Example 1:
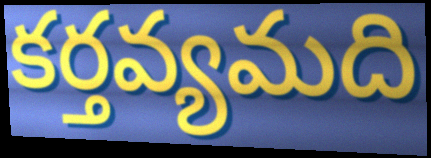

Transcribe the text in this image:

కర్తవ్యమది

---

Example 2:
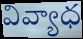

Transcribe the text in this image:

వివ్యాధ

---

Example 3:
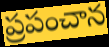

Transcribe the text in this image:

ప్రపంచాన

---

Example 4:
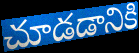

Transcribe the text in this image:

చూడడానికి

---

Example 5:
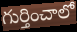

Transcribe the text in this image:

గుర్తించాలో